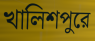
খালিশপুরে